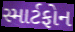
સ્માર્ટફોન